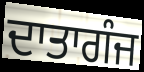
ਦਾਤਾਗੰਜ